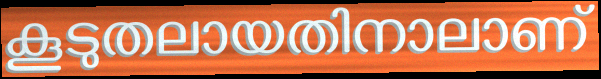
കൂടുതലായതിനാലാണ്